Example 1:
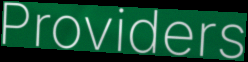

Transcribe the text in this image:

Providers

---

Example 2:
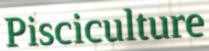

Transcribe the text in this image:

Pisciculture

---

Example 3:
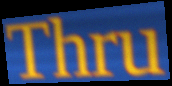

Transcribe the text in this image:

Thru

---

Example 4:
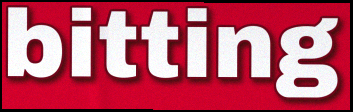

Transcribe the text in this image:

bitting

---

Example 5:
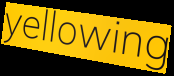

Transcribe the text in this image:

yellowing